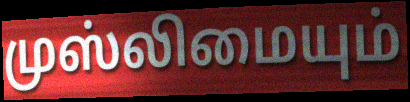
முஸ்லிமையும்